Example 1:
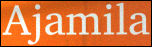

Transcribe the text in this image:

Ajamila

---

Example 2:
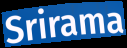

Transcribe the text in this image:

Srirama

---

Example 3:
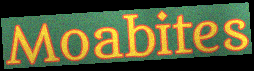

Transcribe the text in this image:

Moabites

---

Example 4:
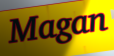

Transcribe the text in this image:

Magan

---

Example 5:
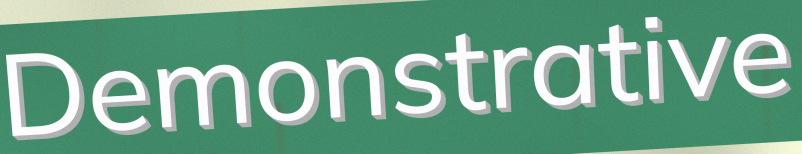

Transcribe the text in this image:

Demonstrative